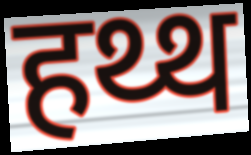
हथ्थ